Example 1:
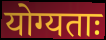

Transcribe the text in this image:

योग्यताः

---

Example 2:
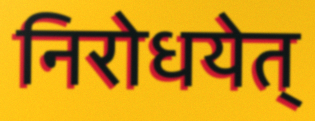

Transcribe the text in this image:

निरोधयेत्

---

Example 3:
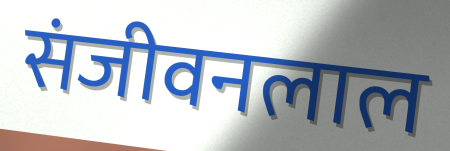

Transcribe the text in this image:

संजीवनलाल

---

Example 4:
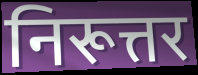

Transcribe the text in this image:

निरूत्तर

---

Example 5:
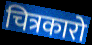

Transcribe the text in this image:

चित्रकारो